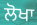
ਲੋਖਾ